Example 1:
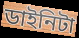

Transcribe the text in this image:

ডাইনিটা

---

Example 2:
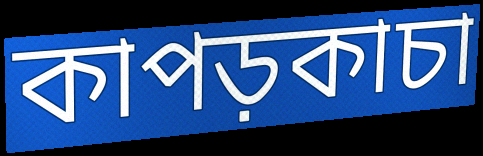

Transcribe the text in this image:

কাপড়কাচা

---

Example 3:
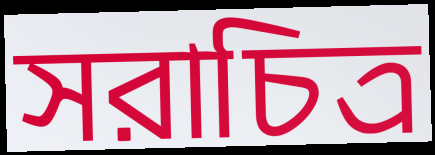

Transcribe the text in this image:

সরাচিত্র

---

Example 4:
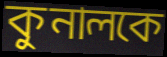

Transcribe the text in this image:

কুনালকে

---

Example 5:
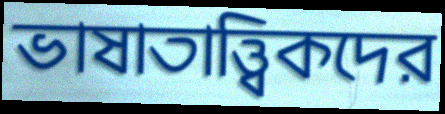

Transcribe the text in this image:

ভাষাতাত্ত্বিকদের